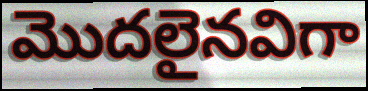
మొదలైనవిగా